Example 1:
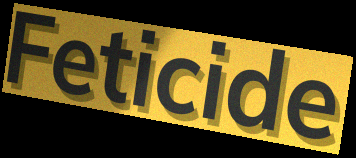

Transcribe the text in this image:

Feticide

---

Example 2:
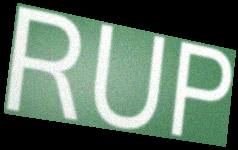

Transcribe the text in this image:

RUP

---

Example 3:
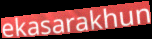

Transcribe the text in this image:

ekasarakhun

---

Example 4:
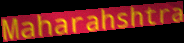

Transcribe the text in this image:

Maharahshtra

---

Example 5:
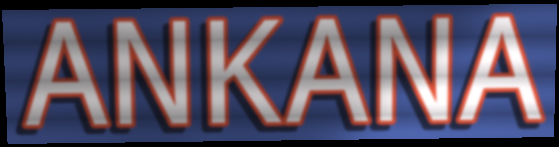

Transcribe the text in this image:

ANKANA